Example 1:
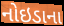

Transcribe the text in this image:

નોઇડાના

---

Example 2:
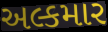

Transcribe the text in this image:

અલ્કમાર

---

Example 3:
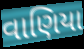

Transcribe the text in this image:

વાણિયા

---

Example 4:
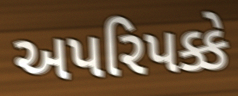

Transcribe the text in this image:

અપરિપક્કે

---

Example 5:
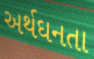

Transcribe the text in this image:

અર્થઘનતા